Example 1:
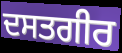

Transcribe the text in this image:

ਦਸਤਗੀਰ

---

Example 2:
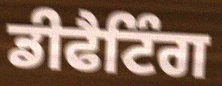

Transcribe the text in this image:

ਡੀਫੈਟਿੰਗ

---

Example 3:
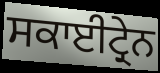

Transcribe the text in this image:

ਸਕਾਈਟ੍ਰੇਨ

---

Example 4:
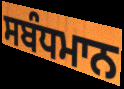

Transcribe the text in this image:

ਸਬੰਧਮਾਨ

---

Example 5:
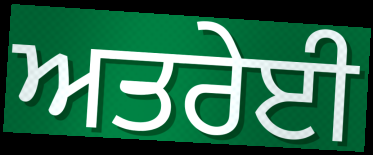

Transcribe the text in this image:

ਅਤਰੇਈ